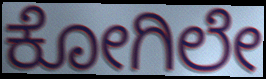
ಕೋಗಿಲೇ